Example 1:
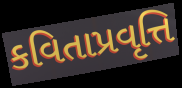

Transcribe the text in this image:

કવિતાપ્રવૃત્તિ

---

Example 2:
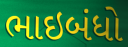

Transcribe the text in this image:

ભાઇબંધો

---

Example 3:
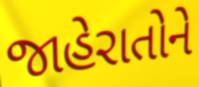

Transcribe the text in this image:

જાહેરાતોને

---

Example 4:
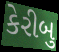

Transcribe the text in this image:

કેરીબુ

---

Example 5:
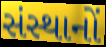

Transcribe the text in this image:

સંસ્થાનોં